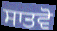
ਸਾਤਵੋ